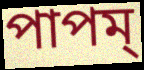
পাপম্